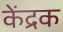
केंद्रक